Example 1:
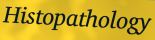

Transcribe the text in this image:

Histopathology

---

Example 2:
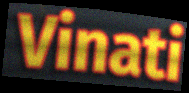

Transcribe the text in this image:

Vinati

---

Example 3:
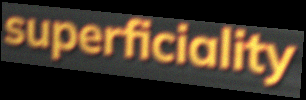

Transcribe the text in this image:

superficiality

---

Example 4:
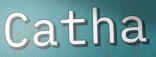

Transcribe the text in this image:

Catha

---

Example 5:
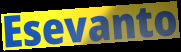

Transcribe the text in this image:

Esevanto